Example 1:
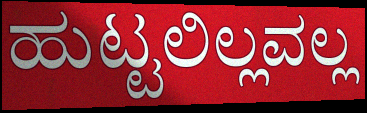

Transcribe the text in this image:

ಹುಟ್ಟಲಿಲ್ಲವಲ್ಲ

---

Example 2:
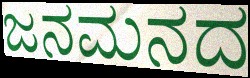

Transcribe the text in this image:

ಜನಮನದ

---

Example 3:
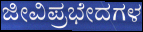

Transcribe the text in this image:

ಜೀವಿಪ್ರಭೇದಗಳ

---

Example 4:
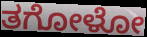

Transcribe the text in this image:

ತಗೋಳೋ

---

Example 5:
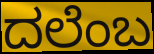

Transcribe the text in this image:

ದಲೆಂಬ